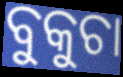
ବୁକୁଚା